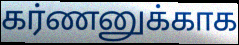
கர்ணனுக்காக